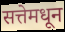
सत्तेमधून